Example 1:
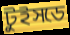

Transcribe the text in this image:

টুইসডে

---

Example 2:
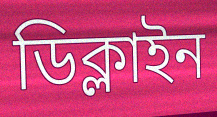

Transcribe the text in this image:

ডিক্লাইন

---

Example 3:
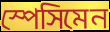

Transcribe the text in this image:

স্পেসিমেন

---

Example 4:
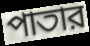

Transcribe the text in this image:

পাতার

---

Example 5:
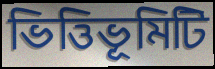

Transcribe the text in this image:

ভিত্তিভূমিটি